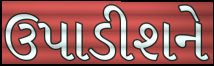
ઉપાડીશને